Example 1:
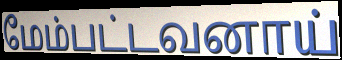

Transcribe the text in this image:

மேம்பட்டவனாய்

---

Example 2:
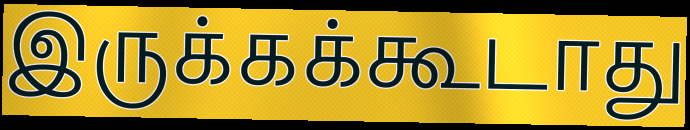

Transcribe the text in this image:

இருக்கக்கூடாது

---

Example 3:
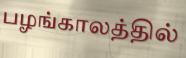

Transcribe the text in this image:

பழங்காலத்தில்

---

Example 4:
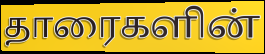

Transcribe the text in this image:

தாரைகளின்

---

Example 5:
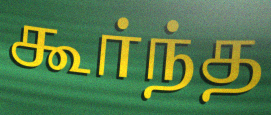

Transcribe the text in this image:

கூர்ந்த